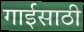
गाईसाठी